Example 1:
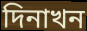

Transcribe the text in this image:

দিনাখন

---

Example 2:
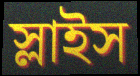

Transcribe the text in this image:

স্লাইস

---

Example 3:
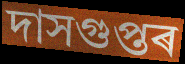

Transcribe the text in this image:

দাসগুপ্তৰ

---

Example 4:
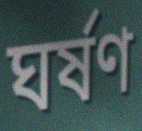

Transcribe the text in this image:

ঘৰ্ষণ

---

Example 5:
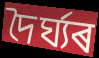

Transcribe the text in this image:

দৈৰ্ঘ্যৰ